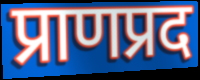
प्राणप्रद